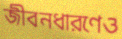
জীবনধারণেও